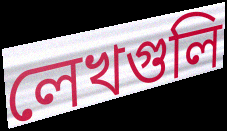
লেখগুলি